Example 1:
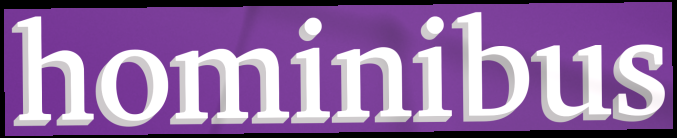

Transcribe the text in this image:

hominibus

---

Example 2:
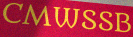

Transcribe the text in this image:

CMWSSB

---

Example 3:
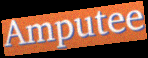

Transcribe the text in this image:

Amputee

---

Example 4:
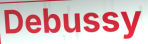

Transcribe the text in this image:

Debussy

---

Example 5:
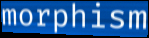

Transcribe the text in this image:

morphism